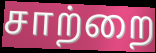
சாற்றை